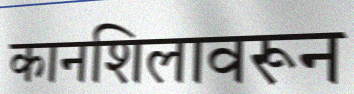
कानशिलावरून